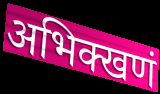
अभिक्खणं